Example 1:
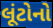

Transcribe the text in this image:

લૂંટોનો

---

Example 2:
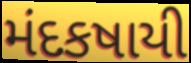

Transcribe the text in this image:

મંદકષાયી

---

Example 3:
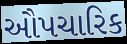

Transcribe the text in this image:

ઔપચારિક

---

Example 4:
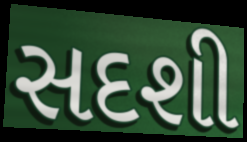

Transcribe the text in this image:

સદશી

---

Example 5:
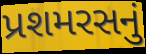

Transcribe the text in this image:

પ્રશમરસનું